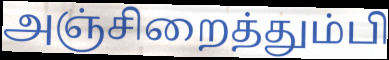
அஞ்சிறைத்தும்பி